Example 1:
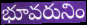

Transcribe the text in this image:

భూవరునిం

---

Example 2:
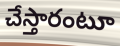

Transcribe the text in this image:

చేస్తారంటూ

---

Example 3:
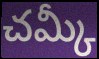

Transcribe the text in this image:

చమ్కీ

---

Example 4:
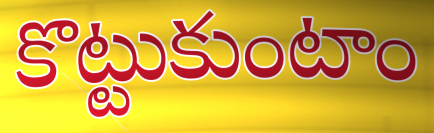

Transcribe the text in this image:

కొట్టుకుంటాం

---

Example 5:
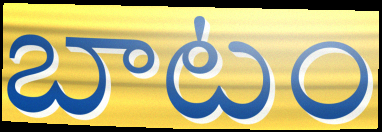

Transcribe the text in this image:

బాటం